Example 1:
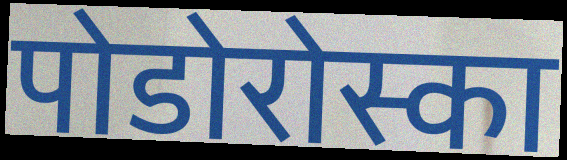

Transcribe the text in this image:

पोडोरोस्का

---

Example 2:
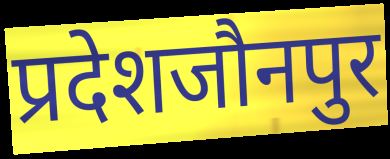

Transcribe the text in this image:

प्रदेशजौनपुर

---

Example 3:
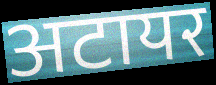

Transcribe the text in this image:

अटायर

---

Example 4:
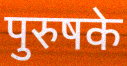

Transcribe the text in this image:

पुरुषके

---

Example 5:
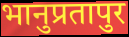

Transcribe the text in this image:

भानुप्रतापुर